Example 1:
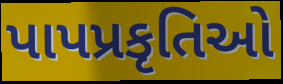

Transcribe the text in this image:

પાપપ્રકૃતિઓ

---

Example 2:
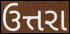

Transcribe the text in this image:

ઉત્તરા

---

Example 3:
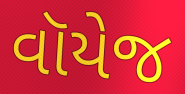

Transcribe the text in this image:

વૉયેજ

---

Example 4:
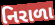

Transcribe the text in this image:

નિરાળા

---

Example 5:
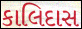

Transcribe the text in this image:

કાલિદાસ